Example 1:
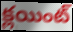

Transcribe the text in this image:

క్లయింట్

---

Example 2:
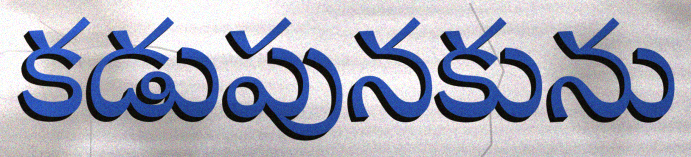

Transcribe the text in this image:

కడుపునకును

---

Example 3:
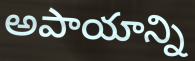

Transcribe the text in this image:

అపాయాన్ని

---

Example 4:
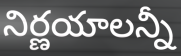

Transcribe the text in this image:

నిర్ణయాలన్నీ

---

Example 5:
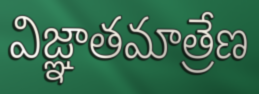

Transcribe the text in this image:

విజ్ఞాతమాత్రేణ